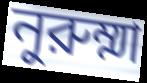
নুরুম্মা